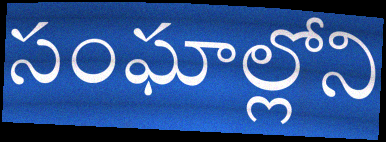
సంఘాల్లోని